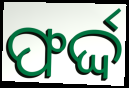
ଫର୍ଦ୍ଦ